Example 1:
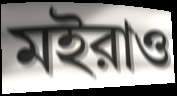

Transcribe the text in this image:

মইরাও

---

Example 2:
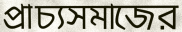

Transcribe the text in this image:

প্রাচ্যসমাজের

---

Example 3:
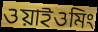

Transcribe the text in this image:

ওয়াইওমিং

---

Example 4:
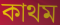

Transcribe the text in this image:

কাথম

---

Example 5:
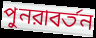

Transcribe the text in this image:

পুনরাবর্তন